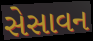
સેસાવન